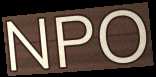
NPO